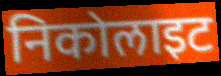
निकोलाइट